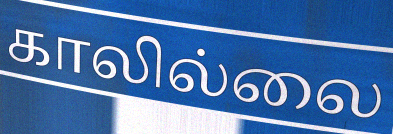
காலில்லை